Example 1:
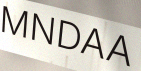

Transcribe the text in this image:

MNDAA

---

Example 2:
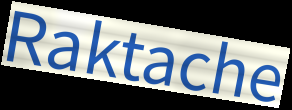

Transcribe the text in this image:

Raktache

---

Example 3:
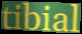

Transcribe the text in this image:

tibial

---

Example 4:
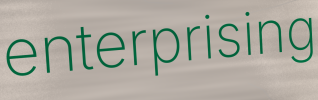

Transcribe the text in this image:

enterprising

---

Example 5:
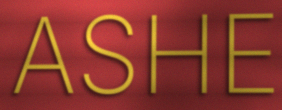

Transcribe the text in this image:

ASHE